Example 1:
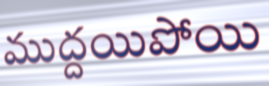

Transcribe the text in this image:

ముద్దయిపోయి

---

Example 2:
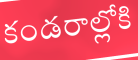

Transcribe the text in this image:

కండరాల్లోకి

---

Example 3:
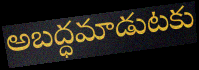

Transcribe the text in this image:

అబద్ధమాడుటకు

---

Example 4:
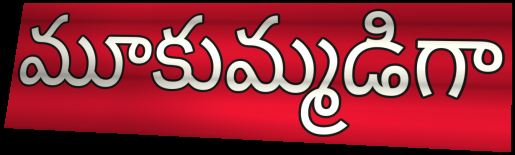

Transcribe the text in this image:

మూకుమ్మడిగా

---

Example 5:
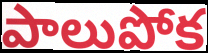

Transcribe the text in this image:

పాలుపోక